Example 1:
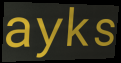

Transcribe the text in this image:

ayks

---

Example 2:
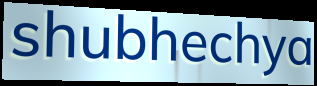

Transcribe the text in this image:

shubhechya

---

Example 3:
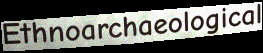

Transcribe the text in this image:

Ethnoarchaeological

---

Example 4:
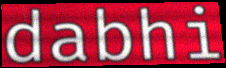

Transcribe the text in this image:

dabhi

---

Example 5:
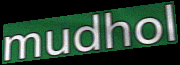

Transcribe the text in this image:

mudhol